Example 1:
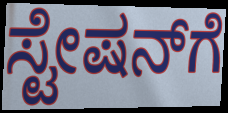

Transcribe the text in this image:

ಸ್ಟೇಷನ್‍ಗೆ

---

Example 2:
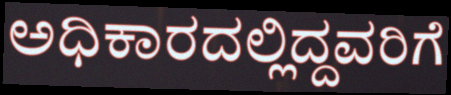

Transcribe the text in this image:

ಅಧಿಕಾರದಲ್ಲಿದ್ದವರಿಗೆ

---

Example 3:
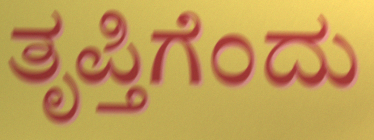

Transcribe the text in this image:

ತೃಪ್ತಿಗೆಂದು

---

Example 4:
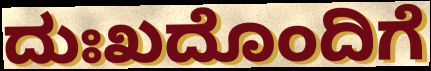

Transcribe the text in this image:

ದುಃಖದೊಂದಿಗೆ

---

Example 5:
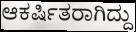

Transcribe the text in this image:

ಆಕರ್ಷಿತರಾಗಿದ್ದು